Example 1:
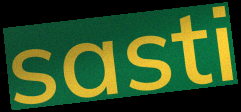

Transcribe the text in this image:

sasti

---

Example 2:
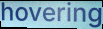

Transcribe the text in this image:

hovering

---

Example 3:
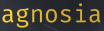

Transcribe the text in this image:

agnosia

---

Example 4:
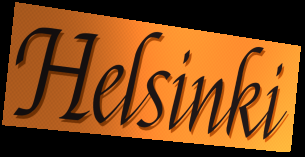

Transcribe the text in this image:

Helsinki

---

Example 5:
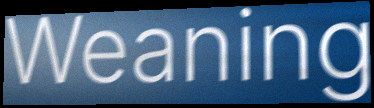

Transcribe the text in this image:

Weaning